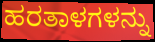
ಹರತಾಳಗಳನ್ನು